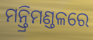
ମନ୍ତ୍ରିମଣ୍ଡଳରେ